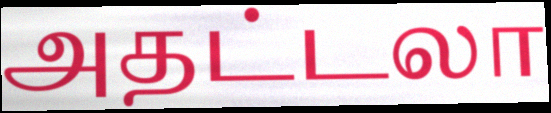
அதட்டலா